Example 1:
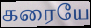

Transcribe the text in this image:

கரையே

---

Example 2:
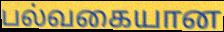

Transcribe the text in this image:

பல்வகையான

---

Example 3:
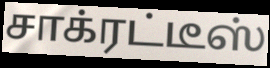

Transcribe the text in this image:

சாக்ரட்டீஸ்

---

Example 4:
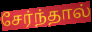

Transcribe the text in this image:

சேர்ந்தால்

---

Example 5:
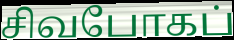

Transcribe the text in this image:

சிவபோகப்